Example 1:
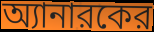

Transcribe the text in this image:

অ্যানারকের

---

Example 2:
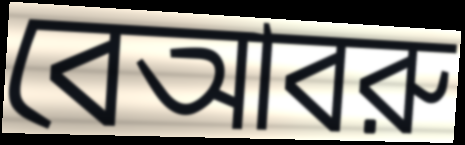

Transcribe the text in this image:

বেআবরু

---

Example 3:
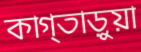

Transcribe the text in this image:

কাগ্‌তাড়ুয়া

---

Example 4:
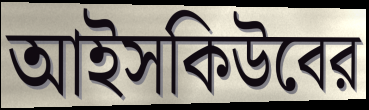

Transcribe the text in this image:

আইসকিউবের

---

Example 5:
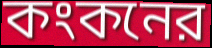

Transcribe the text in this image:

কংকনের